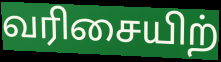
வரிசையிற்